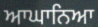
ਆਘਾਨਿਆ